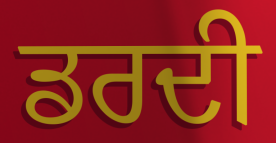
ਡਰਦੀ